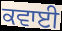
ਕਵਾਈ